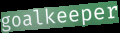
goalkeeper